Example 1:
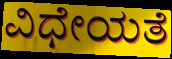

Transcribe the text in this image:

ವಿಧೇಯತೆ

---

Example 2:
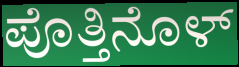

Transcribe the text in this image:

ಪೊತ್ತಿನೊಳ್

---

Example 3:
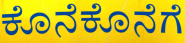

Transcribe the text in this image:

ಕೊನೆಕೊನೆಗೆ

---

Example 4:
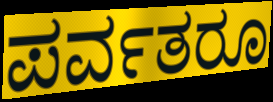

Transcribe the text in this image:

ಪರ್ವತರೂ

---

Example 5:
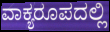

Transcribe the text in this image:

ವಾಕ್ಯರೂಪದಲ್ಲಿ